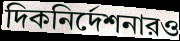
দিকনির্দেশনারও